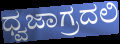
ಧ್ವಜಾಗ್ರದಲಿ